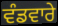
ਵੰਡਵਾਰੇ